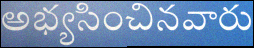
అభ్యసించినవారు